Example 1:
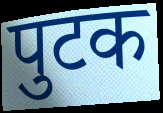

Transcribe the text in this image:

पुटक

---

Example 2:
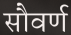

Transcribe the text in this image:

सौवर्ण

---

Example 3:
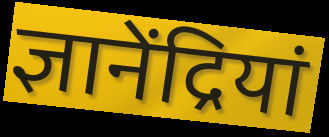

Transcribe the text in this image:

ज्ञानेंद्रियां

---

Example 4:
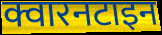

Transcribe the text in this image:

क्वारनटाइन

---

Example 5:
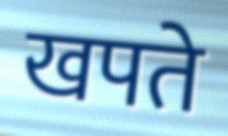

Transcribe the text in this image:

खपते